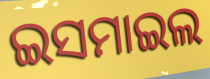
ଇସମାଇଲ